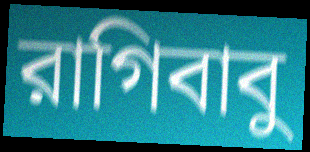
রাগিবাবু